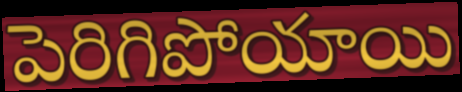
పెరిగిపోయాయి